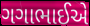
ગગાભાઈએ